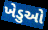
ખેડુઓ